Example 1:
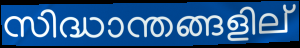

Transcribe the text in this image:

സിദ്ധാന്തങ്ങളില്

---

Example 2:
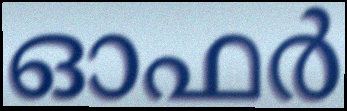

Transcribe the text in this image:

ഓഫർ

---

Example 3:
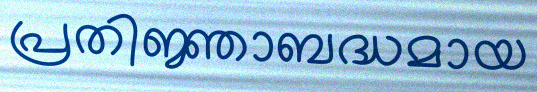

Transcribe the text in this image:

പ്രതിജ്ഞാബദ്ധമായ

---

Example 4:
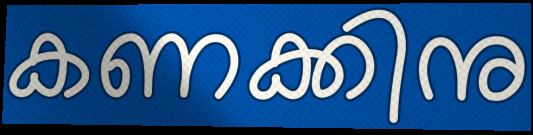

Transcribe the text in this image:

കണക്കിനു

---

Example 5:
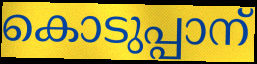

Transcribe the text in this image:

കൊടുപ്പാന്